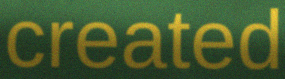
created